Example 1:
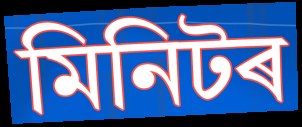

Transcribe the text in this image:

মিনিটৰ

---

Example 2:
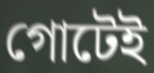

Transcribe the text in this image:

গোটেই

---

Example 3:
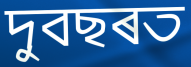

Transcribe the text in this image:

দুবছৰত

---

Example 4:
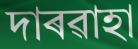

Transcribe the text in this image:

দাৰৱাহা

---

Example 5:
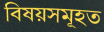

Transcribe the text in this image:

বিষয়সমূহত